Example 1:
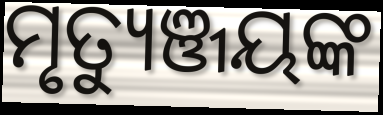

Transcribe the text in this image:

ମୃତ୍ୟୁଞ୍ଜୟଙ୍କ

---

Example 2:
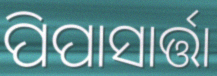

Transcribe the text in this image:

ପିପାସାର୍ତ୍ତା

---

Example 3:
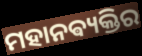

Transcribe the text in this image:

ମହାନଵ୍ୟକ୍ତିର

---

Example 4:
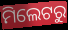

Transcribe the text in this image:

ମିଲେଟରୁ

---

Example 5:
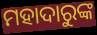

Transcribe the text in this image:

ମହାଦାରୁଙ୍କ